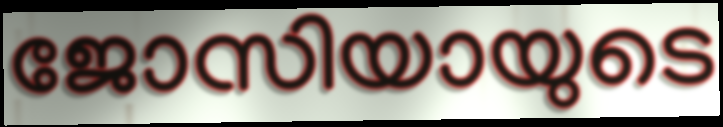
ജോസിയായുടെ